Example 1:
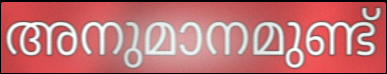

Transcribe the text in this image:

അനുമാനമുണ്ട്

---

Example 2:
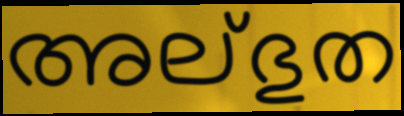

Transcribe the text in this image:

അല്ഭുത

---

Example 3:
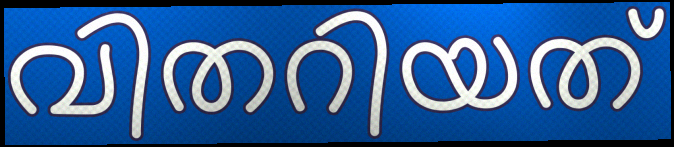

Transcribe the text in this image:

വിതറിയത്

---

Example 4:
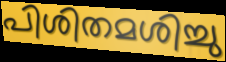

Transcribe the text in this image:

പിശിതമശിച്ചു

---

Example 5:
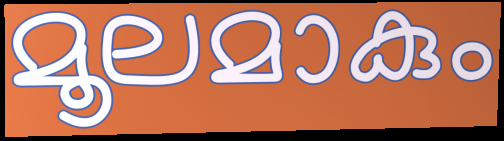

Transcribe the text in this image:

മൂലമാകും